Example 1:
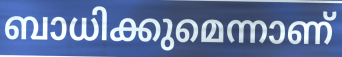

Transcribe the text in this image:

ബാധിക്കുമെന്നാണ്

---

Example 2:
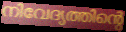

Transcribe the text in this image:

നിവേദ്യത്തിന്റെ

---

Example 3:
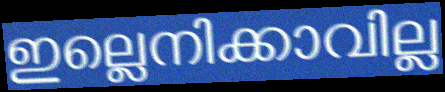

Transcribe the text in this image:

ഇല്ലെനിക്കാവില്ല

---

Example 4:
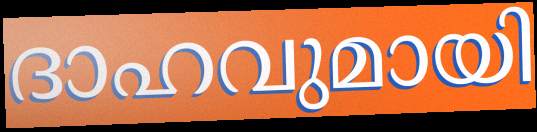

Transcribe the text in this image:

ദാഹവുമായി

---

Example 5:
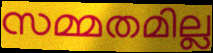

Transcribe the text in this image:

സമ്മതമില്ല